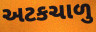
અટકચાળુ